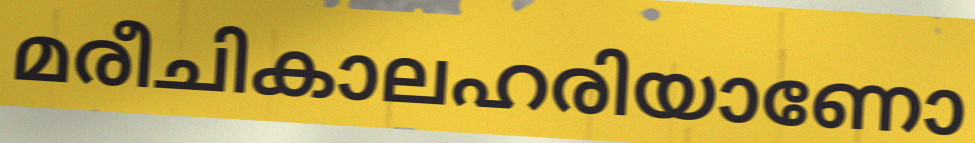
മരീചികാലഹരിയാണോ